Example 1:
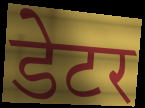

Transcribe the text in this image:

डेटर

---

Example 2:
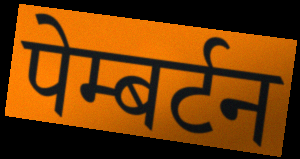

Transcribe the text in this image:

पेम्बर्टन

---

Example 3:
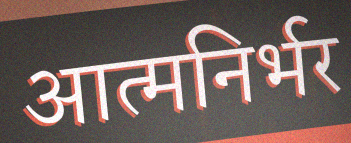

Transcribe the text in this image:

आत्मनिर्भर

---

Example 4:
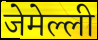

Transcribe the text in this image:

जेमेल्ली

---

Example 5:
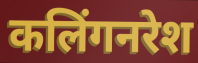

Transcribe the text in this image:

कलिंगनरेश